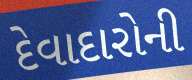
દેવાદારોની